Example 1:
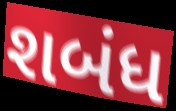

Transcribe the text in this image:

શબંધ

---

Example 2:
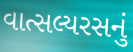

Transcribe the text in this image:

વાત્સલ્યરસનું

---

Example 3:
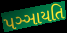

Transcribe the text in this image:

પઞ્ઞાયતિ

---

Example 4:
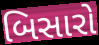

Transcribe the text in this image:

બિસારો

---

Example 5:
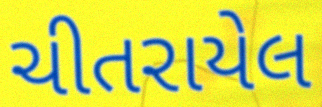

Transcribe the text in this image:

ચીતરાયેલ